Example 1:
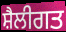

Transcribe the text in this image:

ਸ਼ੈਲੀਗਤ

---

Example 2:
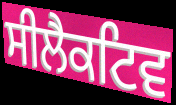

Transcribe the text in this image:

ਸੀਲੈਕਟਿਵ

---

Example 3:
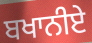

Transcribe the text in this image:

ਬਖਾਨੀਏ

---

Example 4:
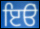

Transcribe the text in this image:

ਇੳਂ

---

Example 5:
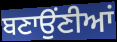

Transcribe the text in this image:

ਬਣਾਉਂਣੀਆਂ